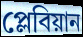
প্লেবিয়ান